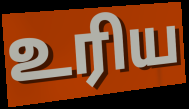
உரிய